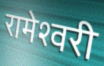
रामेश्वरी